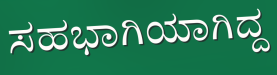
ಸಹಭಾಗಿಯಾಗಿದ್ದ